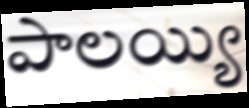
పాలయ్యి